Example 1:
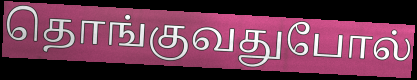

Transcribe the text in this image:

தொங்குவதுபோல்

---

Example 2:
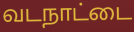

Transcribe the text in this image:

வடநாட்டை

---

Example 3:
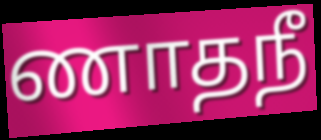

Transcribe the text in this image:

ணாதநீ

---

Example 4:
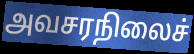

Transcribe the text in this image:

அவசரநிலைச்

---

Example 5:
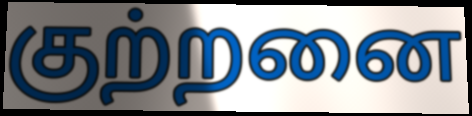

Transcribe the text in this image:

குற்றனை